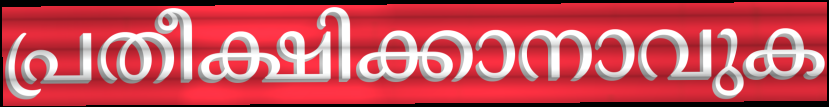
പ്രതീക്ഷിക്കാനാവുക